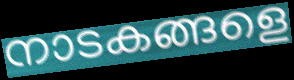
നാടകങ്ങളെ